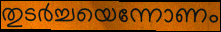
തുടർച്ചയെന്നോണം